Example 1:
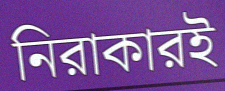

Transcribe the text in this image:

নিরাকারই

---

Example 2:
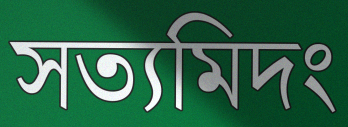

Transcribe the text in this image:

সত্যমিদং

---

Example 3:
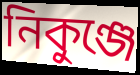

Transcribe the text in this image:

নিকুঞ্জে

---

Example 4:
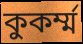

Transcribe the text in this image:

কুকর্ম্ম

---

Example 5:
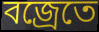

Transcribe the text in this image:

বজ্রেতে